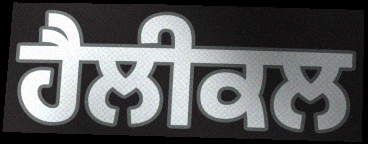
ਹੈਲੀਕਲ